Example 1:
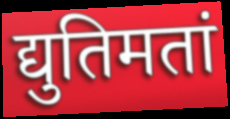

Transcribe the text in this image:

द्युतिमतां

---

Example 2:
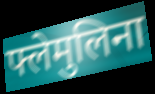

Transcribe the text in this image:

फ्लेमुलिना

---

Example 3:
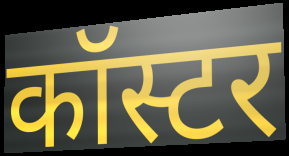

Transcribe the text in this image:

कॉस्टर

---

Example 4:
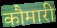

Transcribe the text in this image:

कौमारी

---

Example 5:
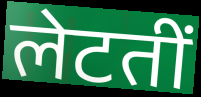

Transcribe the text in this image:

लेटतीं